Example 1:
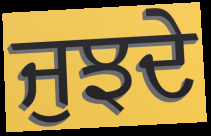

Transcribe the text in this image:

ਜੁਝਦੇ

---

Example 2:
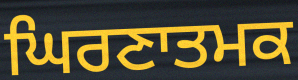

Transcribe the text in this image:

ਘਿਰਣਾਤਮਕ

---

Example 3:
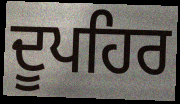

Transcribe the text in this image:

ਦੂਪਹਿਰ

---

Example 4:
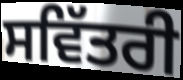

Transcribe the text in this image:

ਸਵਿੱਤਰੀ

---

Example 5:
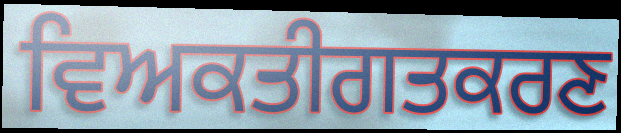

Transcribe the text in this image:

ਵਿਅਕਤੀਗਤਕਰਣ